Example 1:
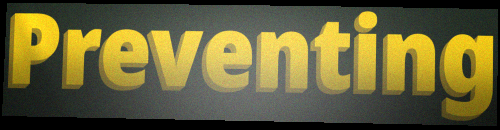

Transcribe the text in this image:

Preventing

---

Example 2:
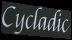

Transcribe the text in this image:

Cycladic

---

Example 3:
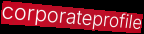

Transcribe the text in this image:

corporateprofile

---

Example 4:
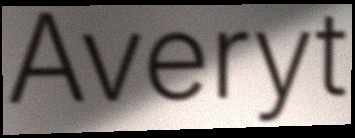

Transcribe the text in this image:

Averyt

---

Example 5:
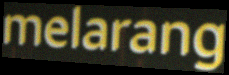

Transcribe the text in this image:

melarang